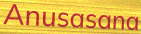
Anusasana